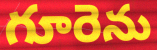
గూరెను